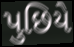
પુછિયે